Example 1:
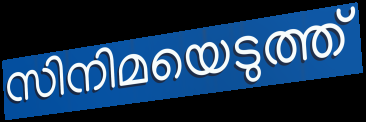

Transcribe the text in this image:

സിനിമയെടുത്ത്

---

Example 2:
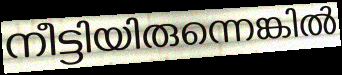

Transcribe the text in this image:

നീട്ടിയിരുന്നെങ്കിൽ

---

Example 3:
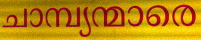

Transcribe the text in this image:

ചാമ്പ്യന്മാരെ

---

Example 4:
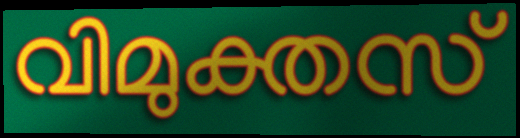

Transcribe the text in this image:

വിമുക്തസ്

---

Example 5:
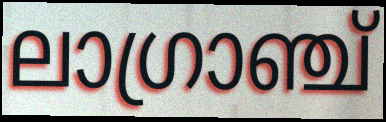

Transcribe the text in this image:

ലാഗ്രാഞ്ച്